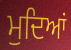
ਮੁਦਿਆਂ